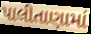
પાલીતાણામાં